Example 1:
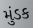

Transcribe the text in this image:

મુંડક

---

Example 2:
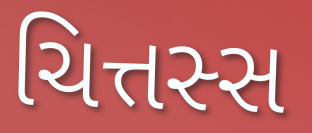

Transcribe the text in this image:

ચિત્તસ્સ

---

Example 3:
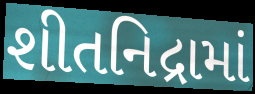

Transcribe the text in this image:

શીતનિદ્રામાં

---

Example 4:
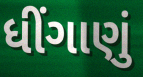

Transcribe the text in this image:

ધીંગાણું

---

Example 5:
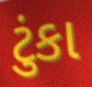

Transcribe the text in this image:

ટુંકા